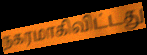
நகரமாகிவிட்டது